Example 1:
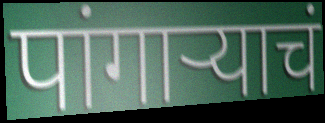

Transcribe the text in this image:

पांगाऱ्याचं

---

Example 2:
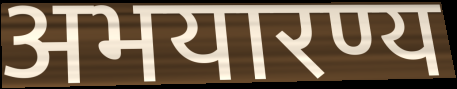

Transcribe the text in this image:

अभयारण्य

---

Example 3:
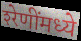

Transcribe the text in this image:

श्रेणींमध्ये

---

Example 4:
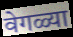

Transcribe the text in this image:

वेगळ्या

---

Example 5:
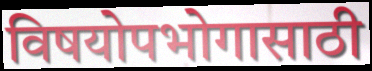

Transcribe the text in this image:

विषयोपभोगासाठी